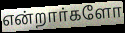
என்றார்களோ